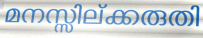
മനസ്സില്ക്കരുതി